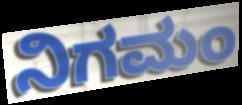
ನಿಗಮಂ